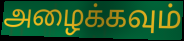
அழைக்கவும்